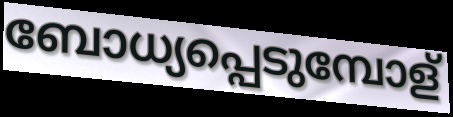
ബോധ്യപ്പെടുമ്പോള്